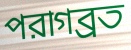
পরাগব্রত